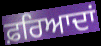
ਫ਼ਰਿਆਦਾਂ